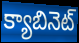
క్యాబినెట్